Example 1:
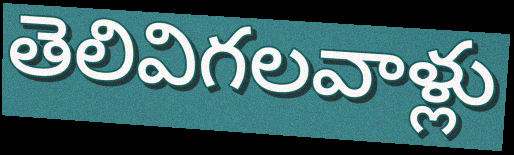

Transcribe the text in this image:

తెలివిగలవాళ్లు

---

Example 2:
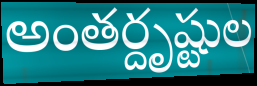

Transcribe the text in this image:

అంతర్దృష్టుల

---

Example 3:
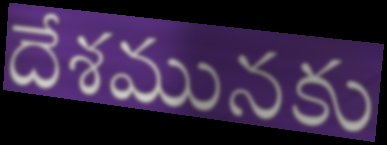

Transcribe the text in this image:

దేశమునకు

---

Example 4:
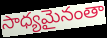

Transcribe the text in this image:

సాధ్యమైనంతా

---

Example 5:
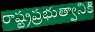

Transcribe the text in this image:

రాష్ట్రప్రభుత్వానికి